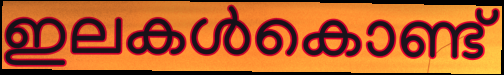
ഇലകൾകൊണ്ട്